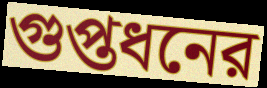
গুপ্তধনের